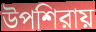
উপশিরায়